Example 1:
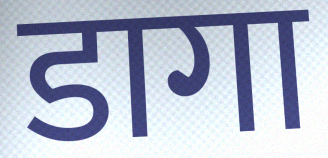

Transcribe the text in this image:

डागा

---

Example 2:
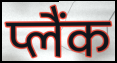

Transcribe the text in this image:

प्लैंक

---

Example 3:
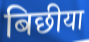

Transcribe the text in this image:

बिछीया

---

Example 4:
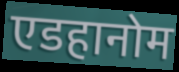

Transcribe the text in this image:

एडहानोम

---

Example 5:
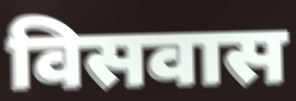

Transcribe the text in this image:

विसवास